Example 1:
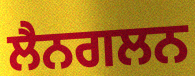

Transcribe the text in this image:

ਲੈਨਗਲਨ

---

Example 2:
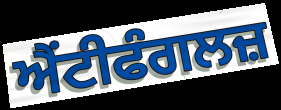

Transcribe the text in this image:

ਐਂਟੀਫੰਗਲਜ਼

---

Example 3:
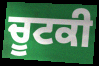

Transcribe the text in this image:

ਚੂਟਕੀ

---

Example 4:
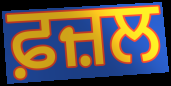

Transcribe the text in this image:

ਫ਼ਜ਼ਲ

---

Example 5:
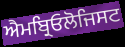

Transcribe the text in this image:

ਐਮਬ੍ਰਿਓਲੋਜਿਸਟ